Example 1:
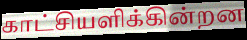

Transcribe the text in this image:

காட்சியளிக்கின்றன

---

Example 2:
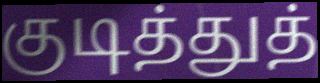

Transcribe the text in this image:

குடித்துத்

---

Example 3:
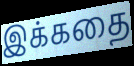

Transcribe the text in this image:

இக்கதை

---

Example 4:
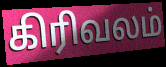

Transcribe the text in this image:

கிரிவலம்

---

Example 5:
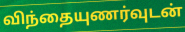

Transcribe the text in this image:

விந்தையுணர்வுடன்